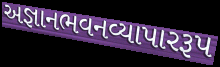
અજ્ઞાનભવનવ્યાપારરૂપ